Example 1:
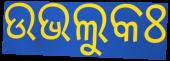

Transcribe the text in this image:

ଉଭଲୁକଃ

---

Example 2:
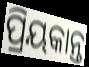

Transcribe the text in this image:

ପ୍ରିୟକାନ୍ତ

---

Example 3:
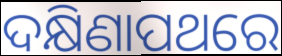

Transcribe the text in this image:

ଦକ୍ଷିଣାପଥରେ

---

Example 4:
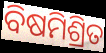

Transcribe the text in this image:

ବିଷମିଶ୍ରିତ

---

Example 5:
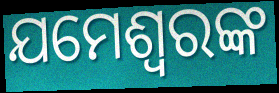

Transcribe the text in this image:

ଯମେଶ୍ୱରଙ୍କ